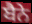
ਬੈਨੇ